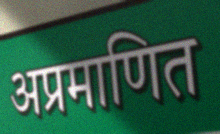
अप्रमाणित